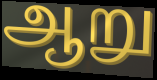
ஆறு